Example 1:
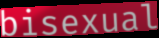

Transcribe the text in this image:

bisexual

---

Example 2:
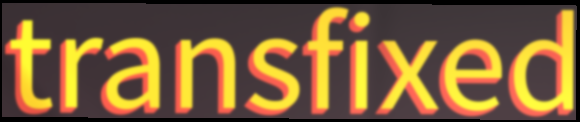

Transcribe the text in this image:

transfixed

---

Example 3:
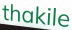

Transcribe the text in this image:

thakile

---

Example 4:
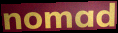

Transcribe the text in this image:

nomad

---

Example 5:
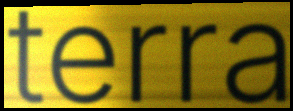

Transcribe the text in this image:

terra